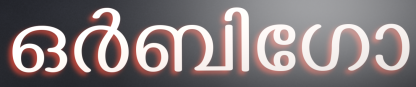
ഒർബിഗോ